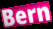
Bern